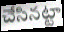
చేసినట్టా